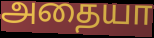
அதையா